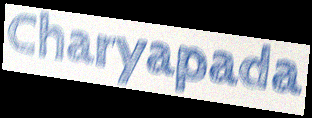
Charyapada